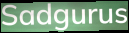
Sadgurus